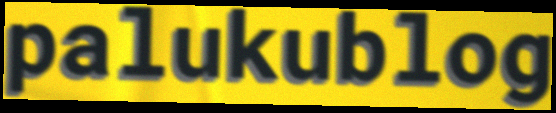
palukublog